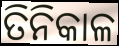
ତିନିକାଳ